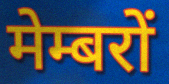
मेम्बरों